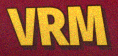
VRM